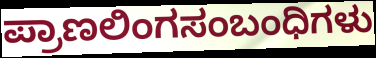
ಪ್ರಾಣಲಿಂಗಸಂಬಂಧಿಗಳು